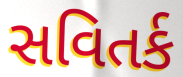
સવિતર્ક